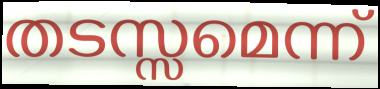
തടസ്സമെന്ന്